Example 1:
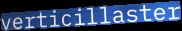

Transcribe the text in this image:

verticillaster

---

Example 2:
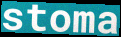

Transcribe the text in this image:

stoma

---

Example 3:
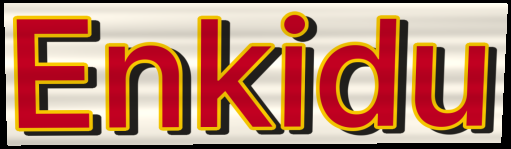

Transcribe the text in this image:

Enkidu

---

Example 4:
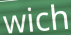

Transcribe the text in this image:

wich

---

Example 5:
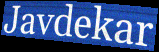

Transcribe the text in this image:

Javdekar